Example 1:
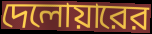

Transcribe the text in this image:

দেলোয়ারের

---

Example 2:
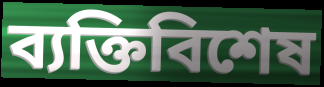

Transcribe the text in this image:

ব্যক্তিবিশেষ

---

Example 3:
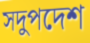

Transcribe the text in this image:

সদুপদেশ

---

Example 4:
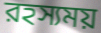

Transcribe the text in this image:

রহস্যময়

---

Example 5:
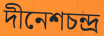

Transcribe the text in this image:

দীনেশচন্দ্র